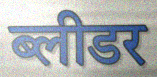
ब्लीडर